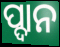
ପ୍ଦାନ